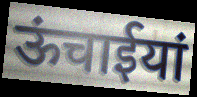
ऊंचाईयां